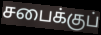
சபைக்குப்